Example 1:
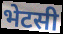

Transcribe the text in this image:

भेटसी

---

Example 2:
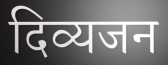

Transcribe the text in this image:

दिव्यजन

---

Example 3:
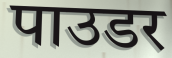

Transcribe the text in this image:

पाउडर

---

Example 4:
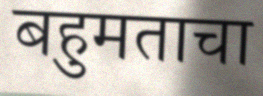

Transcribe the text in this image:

बहुमताचा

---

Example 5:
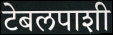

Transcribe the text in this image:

टेबलपाशी